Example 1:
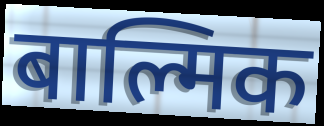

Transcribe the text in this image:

बाल्मिक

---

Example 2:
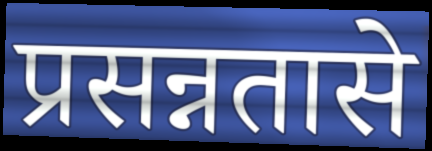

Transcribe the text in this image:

प्रसन्नतासे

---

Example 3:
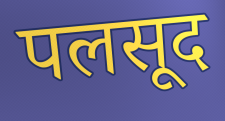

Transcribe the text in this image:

पलसूद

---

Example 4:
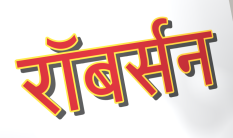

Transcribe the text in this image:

रॉबर्सन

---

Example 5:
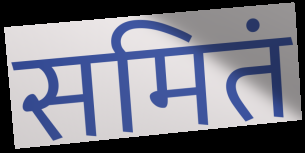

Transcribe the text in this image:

समितं